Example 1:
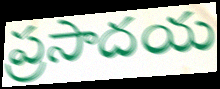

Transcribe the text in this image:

ప్రసాదయ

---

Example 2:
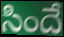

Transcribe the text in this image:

సిందే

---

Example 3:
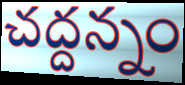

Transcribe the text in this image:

చద్దన్నం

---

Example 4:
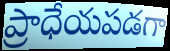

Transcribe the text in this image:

ప్రాధేయపడగా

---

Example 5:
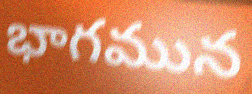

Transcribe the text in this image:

భాగమున